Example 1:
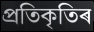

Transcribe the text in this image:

প্ৰতিকৃতিৰ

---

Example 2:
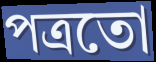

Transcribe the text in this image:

পত্ৰতো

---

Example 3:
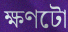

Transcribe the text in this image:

ক্ষণটো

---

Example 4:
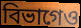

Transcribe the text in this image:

বিভাগেও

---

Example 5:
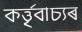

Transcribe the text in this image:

কৰ্ত্তৃবাচ্যৰ